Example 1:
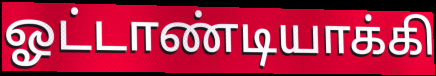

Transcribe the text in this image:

ஓட்டாண்டியாக்கி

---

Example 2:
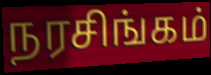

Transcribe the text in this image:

நரசிங்கம்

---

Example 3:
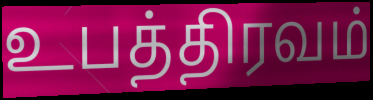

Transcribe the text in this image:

உபத்திரவம்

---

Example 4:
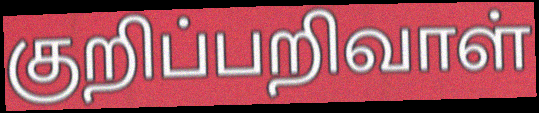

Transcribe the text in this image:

குறிப்பறிவாள்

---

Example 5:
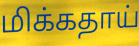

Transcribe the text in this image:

மிக்கதாய்